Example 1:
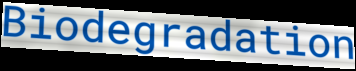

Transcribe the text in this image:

Biodegradation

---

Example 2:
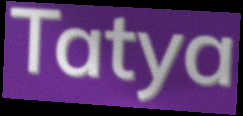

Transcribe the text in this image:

Tatya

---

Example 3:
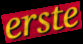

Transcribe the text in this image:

erste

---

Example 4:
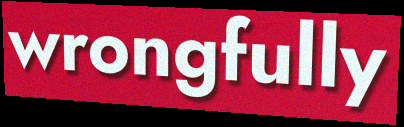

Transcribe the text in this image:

wrongfully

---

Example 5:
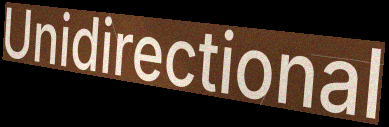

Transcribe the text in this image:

Unidirectional